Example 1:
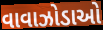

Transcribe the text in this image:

વાવાઝોડાઓ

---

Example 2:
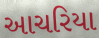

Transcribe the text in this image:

આચરિયા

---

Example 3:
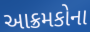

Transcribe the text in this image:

આક્રમકોના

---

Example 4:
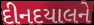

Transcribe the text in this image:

દીનદયાલને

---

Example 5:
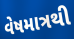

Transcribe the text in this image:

વેષમાત્રથી